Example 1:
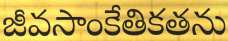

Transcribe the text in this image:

జీవసాంకేతికతను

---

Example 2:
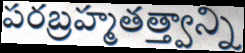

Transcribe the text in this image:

పరబ్రహ్మతత్త్వాన్ని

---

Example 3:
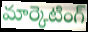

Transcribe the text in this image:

మార్కెటింగ్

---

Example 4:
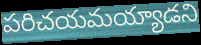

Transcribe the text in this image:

పరిచయమయ్యాడని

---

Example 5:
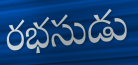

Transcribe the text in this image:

రభసుడు